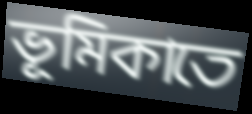
ভূমিকাতে